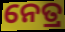
ନେତ୍ର